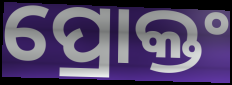
ପ୍ରୋକ୍ତଂ